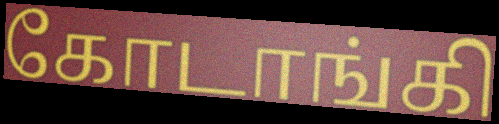
கோடாங்கி